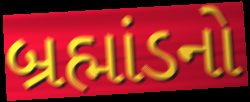
બ્રહ્માંડનો